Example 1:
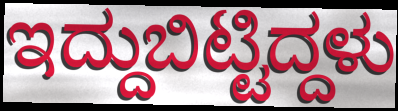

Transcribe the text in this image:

ಇದ್ದುಬಿಟ್ಟಿದ್ದಳು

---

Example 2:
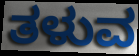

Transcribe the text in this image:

ತಳುವ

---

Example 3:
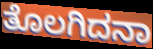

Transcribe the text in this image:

ತೊಲಗಿದನಾ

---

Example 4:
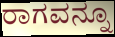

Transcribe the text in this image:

ರಾಗವನ್ನೂ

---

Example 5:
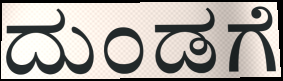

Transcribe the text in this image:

ದುಂಡಗೆ